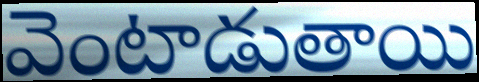
వెంటాడుతాయి